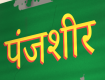
पंजशीर